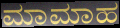
ಮಾಮಾಹ